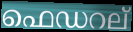
ഫെഡറല്